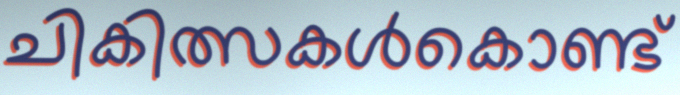
ചികിത്സകൾകൊണ്ട്